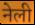
नेली